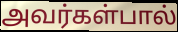
அவர்கள்பால்